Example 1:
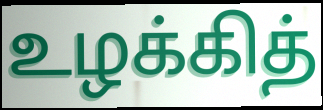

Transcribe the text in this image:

உழக்கித்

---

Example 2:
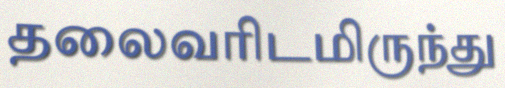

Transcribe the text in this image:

தலைவரிடமிருந்து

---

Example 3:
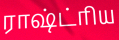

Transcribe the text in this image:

ராஷ்ட்ரிய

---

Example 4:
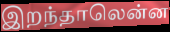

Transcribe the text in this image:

இறந்தாலென்ன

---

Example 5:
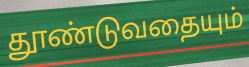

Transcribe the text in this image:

தூண்டுவதையும்